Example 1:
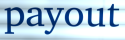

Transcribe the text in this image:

payout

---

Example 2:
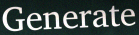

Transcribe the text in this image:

Generate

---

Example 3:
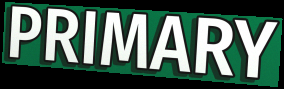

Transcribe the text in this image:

PRIMARY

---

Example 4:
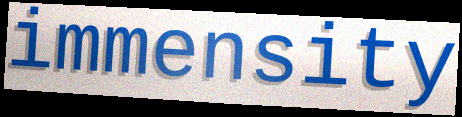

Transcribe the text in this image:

immensity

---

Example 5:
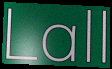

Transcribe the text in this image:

Lall